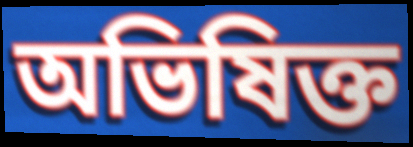
অভিষিক্ত